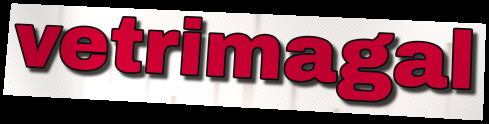
vetrimagal